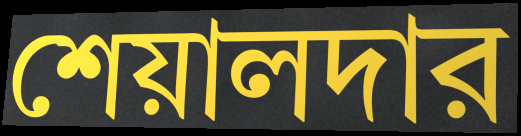
শেয়ালদার